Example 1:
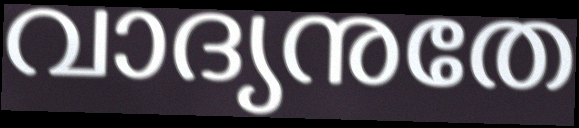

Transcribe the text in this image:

വാദ്യനുതേ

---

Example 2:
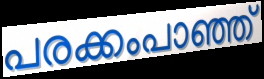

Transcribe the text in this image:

പരക്കംപാഞ്ഞ്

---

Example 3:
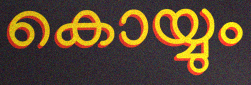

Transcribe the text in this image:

കൊയ്യും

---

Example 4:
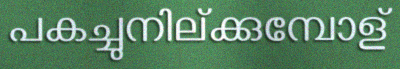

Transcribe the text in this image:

പകച്ചുനില്ക്കുമ്പോള്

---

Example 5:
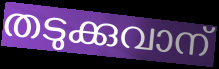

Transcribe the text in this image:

തടുക്കുവാന്